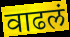
वाढलं